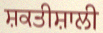
ਸ਼ਕਤੀਸ਼ਾਲੀ